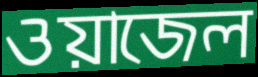
ওয়াজেল